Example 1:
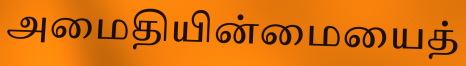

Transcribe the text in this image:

அமைதியின்மையைத்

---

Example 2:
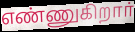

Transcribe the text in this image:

எண்ணுகிறார்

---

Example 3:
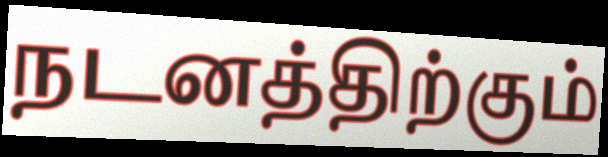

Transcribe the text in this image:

நடனத்திற்கும்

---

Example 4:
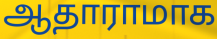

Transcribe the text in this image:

ஆதாராமாக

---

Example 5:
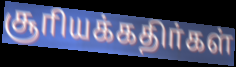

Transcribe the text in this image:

சூரியக்கதிர்கள்